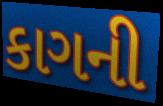
કાગની